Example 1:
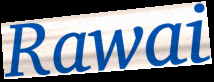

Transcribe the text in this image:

Rawai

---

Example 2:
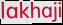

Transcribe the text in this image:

lakhaji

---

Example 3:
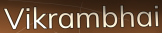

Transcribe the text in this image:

Vikrambhai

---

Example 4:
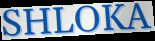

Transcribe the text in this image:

SHLOKA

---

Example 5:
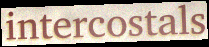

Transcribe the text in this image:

intercostals